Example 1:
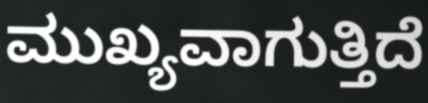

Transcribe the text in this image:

ಮುಖ್ಯವಾಗುತ್ತಿದೆ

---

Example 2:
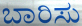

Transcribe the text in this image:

ಬಾರಿಸು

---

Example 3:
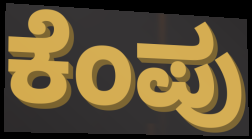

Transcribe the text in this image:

ಕೆಂಪು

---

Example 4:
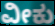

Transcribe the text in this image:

ವೀಕು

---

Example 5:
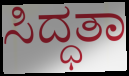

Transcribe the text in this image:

ಸಿದ್ಧತಾ